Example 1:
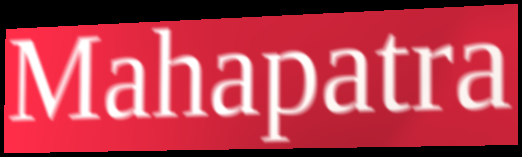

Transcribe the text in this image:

Mahapatra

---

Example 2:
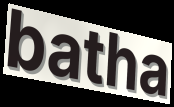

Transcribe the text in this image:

batha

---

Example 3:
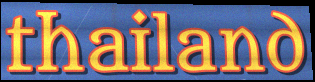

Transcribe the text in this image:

thailand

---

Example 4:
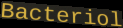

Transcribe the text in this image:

Bacteriol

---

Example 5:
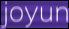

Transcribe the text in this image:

joyun